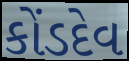
કોંડદેવ